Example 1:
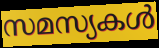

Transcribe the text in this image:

സമസ്യകൾ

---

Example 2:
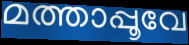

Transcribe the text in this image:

മത്താപ്പൂവേ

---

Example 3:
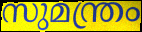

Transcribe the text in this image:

സുമന്ത്രം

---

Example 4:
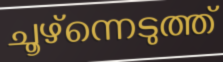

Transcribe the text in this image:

ചൂഴ്ന്നെടുത്ത്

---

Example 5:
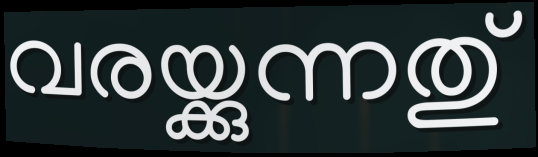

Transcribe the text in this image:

വരയ്ക്കുന്നതു്